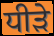
ਧੀੜੇ